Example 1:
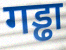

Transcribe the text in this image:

गड्ढा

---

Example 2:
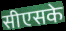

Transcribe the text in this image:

सीएसके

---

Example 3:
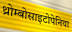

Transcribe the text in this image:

थ्रोम्बोसाइटोपेनिया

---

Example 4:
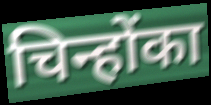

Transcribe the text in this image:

चिन्होंका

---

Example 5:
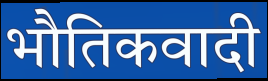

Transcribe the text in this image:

भौतिकवादी